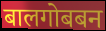
बालगोबबन